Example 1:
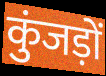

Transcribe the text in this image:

कुंजड़ों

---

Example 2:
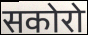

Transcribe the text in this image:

सकोरो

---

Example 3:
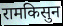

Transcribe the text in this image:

रामकिसुन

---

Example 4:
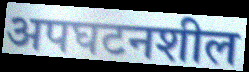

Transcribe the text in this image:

अपघटनशील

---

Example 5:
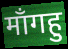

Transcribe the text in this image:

माँगहु